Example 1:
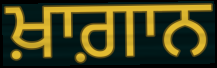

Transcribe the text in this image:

ਖ਼ਾਗ਼ਾਨ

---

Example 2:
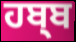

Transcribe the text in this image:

ਹਬ੍ਬ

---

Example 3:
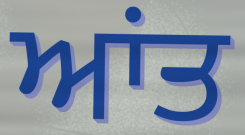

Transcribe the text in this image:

ਆਂਤ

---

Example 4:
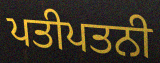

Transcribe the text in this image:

ਪਤੀਪਤਨੀ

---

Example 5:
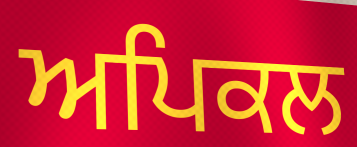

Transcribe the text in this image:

ਅਪਿਕਲ